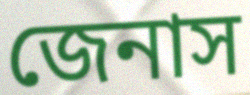
জেনাস